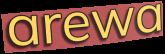
arewa